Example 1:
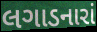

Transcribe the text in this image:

લગાડનારાં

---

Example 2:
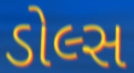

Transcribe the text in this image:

ડોલ્સ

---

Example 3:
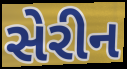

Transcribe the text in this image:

સેરીન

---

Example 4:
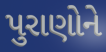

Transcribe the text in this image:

પુરાણોને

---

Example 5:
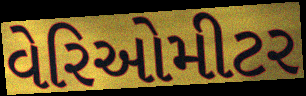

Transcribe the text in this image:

વેરિઓમીટર